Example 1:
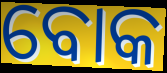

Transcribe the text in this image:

ବୋକ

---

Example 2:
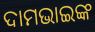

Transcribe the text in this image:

ଦାମଭାଇଙ୍କ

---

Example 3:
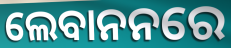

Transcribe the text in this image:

ଲେବାନନରେ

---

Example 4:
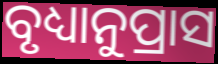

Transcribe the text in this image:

ବୃଧ୍ୟାନୁପ୍ରାସ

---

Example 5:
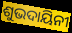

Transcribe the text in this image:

ଶୁଭଦାୟିନୀ